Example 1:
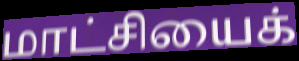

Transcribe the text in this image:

மாட்சியைக்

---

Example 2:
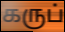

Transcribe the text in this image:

கருப்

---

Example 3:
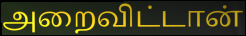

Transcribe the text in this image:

அறைவிட்டான்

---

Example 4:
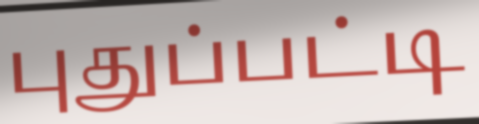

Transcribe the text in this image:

புதுப்பட்டி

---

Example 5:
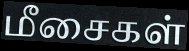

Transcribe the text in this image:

மீசைகள்